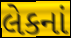
લેકનાં